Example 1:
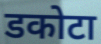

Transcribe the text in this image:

डकोटा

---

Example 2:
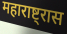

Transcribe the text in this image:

महाराष्ट्रास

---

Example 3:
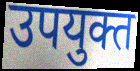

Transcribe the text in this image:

उपयुक्त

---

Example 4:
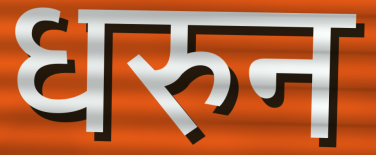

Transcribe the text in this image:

धरुन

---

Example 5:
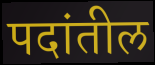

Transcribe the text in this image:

पदांतील